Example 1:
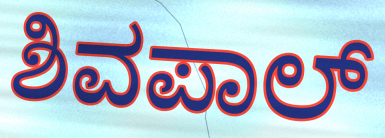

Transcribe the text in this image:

ಶಿವಪಾಲ್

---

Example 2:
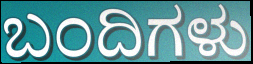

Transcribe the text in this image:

ಬಂದಿಗಳು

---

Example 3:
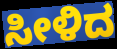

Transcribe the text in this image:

ಸೀಳಿದ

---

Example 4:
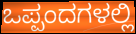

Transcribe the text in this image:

ಒಪ್ಪಂದಗಳಲ್ಲಿ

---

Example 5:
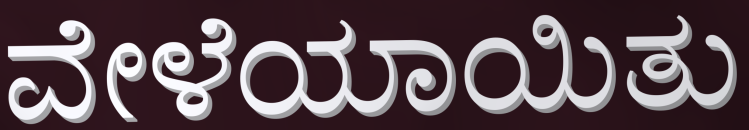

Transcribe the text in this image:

ವೇಳೆಯಾಯಿತು